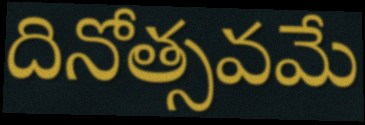
దినోత్సవమే